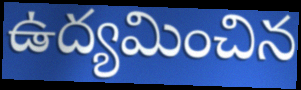
ఉద్యమించిన